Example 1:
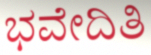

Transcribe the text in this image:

ಭವೇದಿತಿ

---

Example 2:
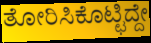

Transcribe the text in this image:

ತೋರಿಸಿಕೊಟ್ಟಿದ್ದೇ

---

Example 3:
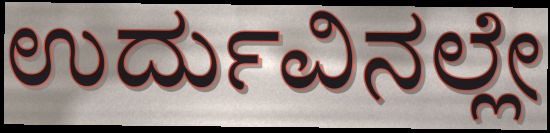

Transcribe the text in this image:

ಉರ್ದುವಿನಲ್ಲೇ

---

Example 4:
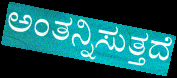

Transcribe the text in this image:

ಅಂತನ್ನಿಸುತ್ತದೆ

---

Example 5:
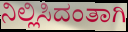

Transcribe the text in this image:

ನಿಲ್ಲಿಸಿದಂತಾಗಿ